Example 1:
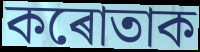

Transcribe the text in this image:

কৰোতাক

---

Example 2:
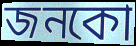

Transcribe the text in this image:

জনকো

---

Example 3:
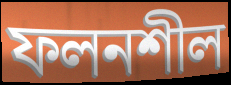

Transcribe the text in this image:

ফলনশীল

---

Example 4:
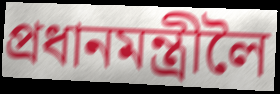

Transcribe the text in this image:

প্ৰধানমন্ত্ৰীলৈ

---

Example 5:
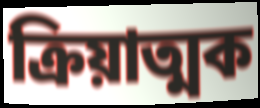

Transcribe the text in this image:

ক্ৰিয়াত্মক